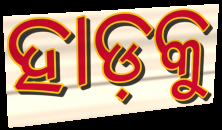
ହାଡ଼କୁ